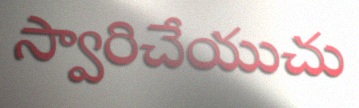
స్వారిచేయుచు